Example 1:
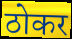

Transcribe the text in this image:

ठोकर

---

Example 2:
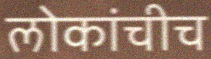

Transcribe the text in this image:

लोकांचीच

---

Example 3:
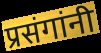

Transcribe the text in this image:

प्रसंगांनी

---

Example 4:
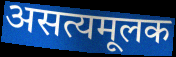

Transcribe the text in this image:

असत्यमूलक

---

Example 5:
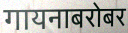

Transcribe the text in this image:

गायनाबरोबर